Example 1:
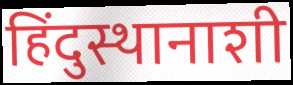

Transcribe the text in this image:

हिंदुस्थानाशी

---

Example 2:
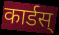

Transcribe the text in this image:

कार्डस्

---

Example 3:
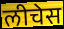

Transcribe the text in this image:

लीचेस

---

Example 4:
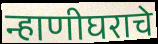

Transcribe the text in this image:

न्हाणीघराचे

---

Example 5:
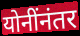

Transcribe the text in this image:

योनींनंतर